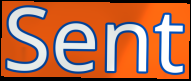
Sent